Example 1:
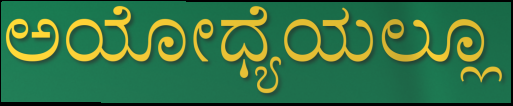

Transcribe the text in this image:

ಅಯೋಧ್ಯೆಯಲ್ಲೂ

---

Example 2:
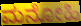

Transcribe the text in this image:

ಮನೋಹಿ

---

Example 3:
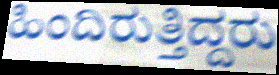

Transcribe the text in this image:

ಹಿಂದಿರುತ್ತಿದ್ದರು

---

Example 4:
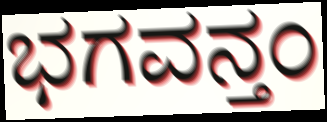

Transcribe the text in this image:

ಭಗವನ್ತಂ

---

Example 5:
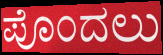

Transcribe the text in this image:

ಪೊಂದಲು